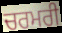
ਚਰਮਰੀ